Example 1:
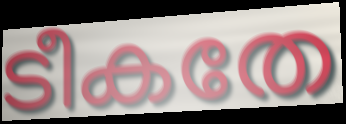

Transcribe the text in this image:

ടീകതേ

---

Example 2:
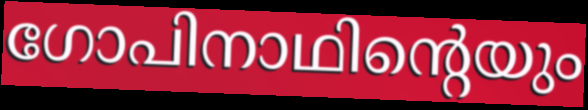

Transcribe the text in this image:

ഗോപിനാഥിന്റെയും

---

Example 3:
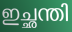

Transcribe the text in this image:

ഇച്ഛന്തി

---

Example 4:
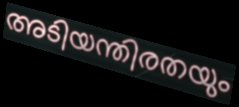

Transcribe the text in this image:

അടിയന്തിരതയും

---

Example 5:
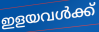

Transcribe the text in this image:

ഇളയവൾക്ക്